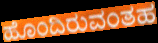
ಹೊಂದಿರುವಂತಹ